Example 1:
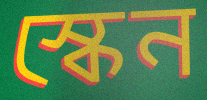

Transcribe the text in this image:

স্কেন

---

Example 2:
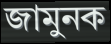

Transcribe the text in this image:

জামুনক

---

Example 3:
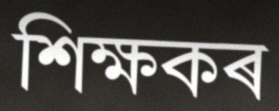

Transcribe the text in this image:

শিক্ষকৰ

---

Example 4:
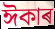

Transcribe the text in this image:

ঈকাৰ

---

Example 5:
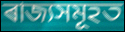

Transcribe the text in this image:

ৰাজ্যসমূহত